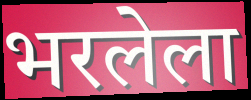
भरलेला